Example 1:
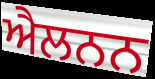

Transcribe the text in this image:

ਐਲਨਨ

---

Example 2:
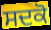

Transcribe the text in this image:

ਸਦਕੋ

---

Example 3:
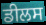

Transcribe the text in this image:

ਡੀਲਸ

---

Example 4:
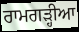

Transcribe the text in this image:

ਰਾਮਗਡ਼੍ਹੀਆ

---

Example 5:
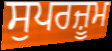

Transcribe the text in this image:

ਸੁਪਰਜ਼ੂਮ